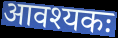
आवश्यकः